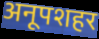
अनूपशहर